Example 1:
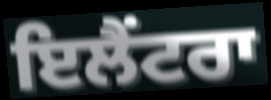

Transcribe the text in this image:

ਇਲੈਂਟਰਾ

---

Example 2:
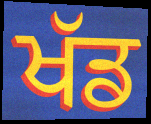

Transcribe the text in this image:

ਖੱਡ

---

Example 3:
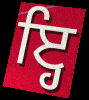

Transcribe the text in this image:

ਇ੍ਹ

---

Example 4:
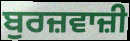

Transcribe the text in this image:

ਬੁਰਜ਼ਵਾਜ਼ੀ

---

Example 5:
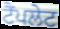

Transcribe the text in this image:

ਟੈਂਪਲੇਟ